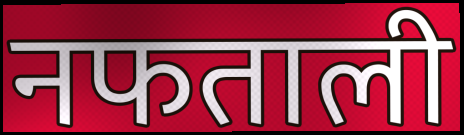
नफताली